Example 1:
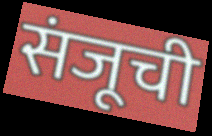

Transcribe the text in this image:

संजूची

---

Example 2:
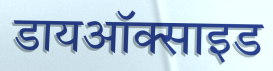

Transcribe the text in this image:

डायऑक्साइड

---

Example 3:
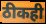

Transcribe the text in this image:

ठीकही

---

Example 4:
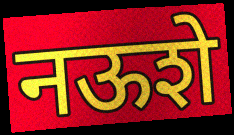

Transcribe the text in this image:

नऊशे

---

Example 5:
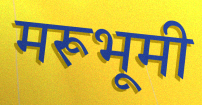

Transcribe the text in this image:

मरूभूमी